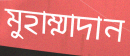
মুহাম্মাদান